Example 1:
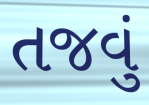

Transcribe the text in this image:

તજવું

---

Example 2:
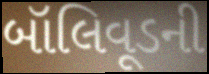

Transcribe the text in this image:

બૉલિવૂડની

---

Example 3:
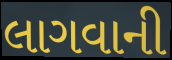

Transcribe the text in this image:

લાગવાની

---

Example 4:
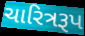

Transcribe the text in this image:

ચારિત્રરૂપ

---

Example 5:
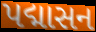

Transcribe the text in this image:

પદ્માસન